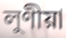
লুণীয়া